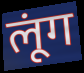
लूंग